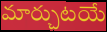
మార్చుటయే